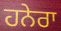
ਹਨੇਰਾ